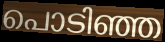
പൊടിഞ്ഞ